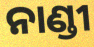
ନାଣ୍ଡୀ